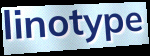
linotype